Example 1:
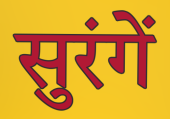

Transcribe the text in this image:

सुरंगें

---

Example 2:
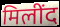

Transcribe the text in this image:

मिलींद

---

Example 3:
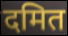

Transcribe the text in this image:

दमित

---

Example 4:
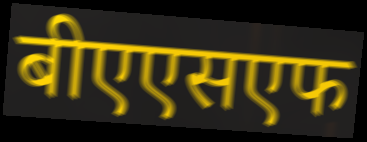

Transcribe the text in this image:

बीएएसएफ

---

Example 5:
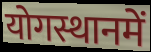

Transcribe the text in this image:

योगस्थानमें